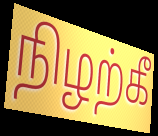
நிழற்கீ